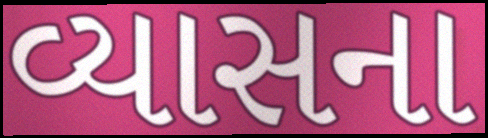
વ્યાસના